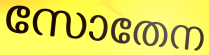
സോതേന